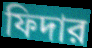
ফিদার